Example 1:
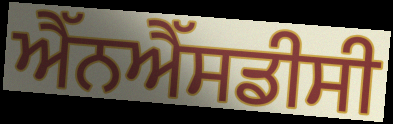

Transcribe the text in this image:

ਐੱਨਐੱਸਡੀਸੀ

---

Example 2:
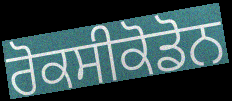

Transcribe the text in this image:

ਰੋਕਸੀਕੋਡੋਨ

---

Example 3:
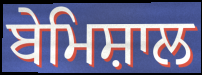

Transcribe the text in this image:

ਬੇਮਿਸ਼ਾਲ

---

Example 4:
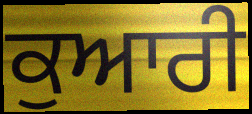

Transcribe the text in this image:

ਕੁਆਰੀ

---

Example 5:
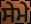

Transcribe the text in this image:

ਸੇਮੇ